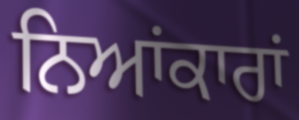
ਨਿਆਂਕਾਰਾਂ